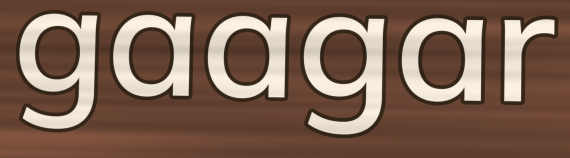
gaagar